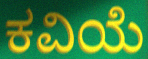
ಕವಿಯೆ